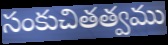
సంకుచితత్వము